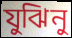
যুঝিনু